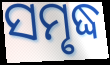
ସମୃଦ୍ଧ